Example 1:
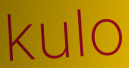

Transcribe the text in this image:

kulo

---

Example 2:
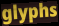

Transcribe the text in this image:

glyphs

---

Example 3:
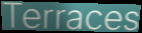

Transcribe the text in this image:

Terraces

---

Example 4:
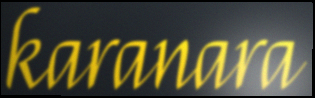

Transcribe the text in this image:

karanara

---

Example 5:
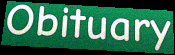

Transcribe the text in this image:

Obituary